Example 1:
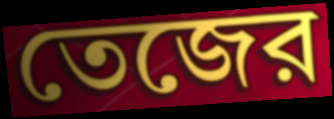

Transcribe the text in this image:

তেজের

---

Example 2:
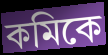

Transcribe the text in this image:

কমিকে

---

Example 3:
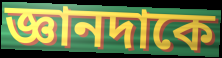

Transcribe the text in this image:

জ্ঞানদাকে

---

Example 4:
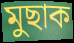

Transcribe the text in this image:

মুছাক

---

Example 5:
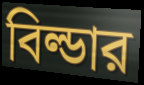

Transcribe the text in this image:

বিল্ডার